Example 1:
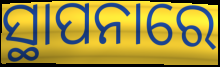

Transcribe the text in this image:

ସ୍ଥାପନାରେ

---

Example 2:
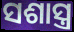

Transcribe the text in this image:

ସଶାସ୍ତ୍ର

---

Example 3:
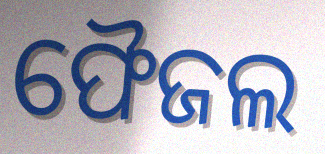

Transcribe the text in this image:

ଫୈଜଲ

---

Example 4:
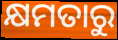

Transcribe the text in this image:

କ୍ଷମତାରୁ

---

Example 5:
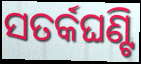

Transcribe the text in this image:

ସତର୍କଘଣ୍ଟି